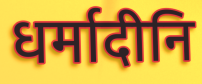
धर्मादीनि